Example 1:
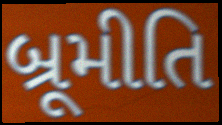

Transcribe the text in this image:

બ્રૂમીતિ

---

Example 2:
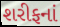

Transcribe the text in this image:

શરીફનાં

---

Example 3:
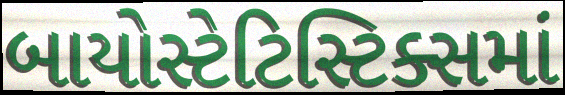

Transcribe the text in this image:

બાયોસ્ટેટિસ્ટિક્સમાં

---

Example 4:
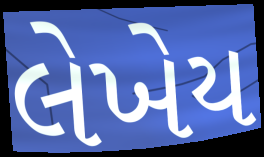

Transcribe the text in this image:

લેખેય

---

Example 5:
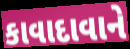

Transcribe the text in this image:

કાવાદાવાને